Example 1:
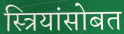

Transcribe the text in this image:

स्त्रियांसोबत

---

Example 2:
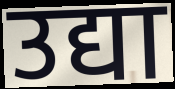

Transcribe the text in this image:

उद्या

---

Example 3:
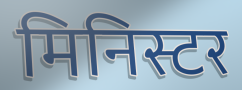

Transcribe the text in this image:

मिनिस्टर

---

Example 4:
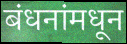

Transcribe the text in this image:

बंधनांमधून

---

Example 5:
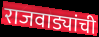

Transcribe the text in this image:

राजवाड्यांची